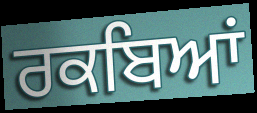
ਰਕਬਿਆਂ